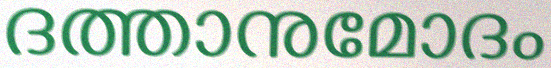
ദത്താനുമോദം